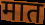
मात